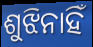
ଶୁଝିନାହିଁ